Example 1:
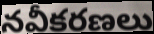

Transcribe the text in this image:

నవీకరణలు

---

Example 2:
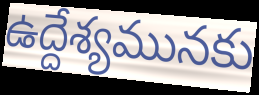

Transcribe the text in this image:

ఉద్దేశ్యమునకు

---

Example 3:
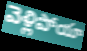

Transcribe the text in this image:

వెళ్లిపోయా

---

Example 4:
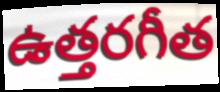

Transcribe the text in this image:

ఉత్తరగీత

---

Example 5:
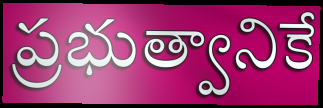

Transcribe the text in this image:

ప్రభుత్వానికే